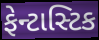
ફેન્ટાસ્ટિક